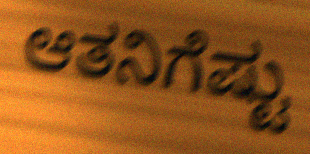
ಆತನಿಗೆಷ್ಟು